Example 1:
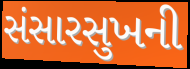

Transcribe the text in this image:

સંસારસુખની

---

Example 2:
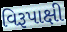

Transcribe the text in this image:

વિરૂપાક્ષી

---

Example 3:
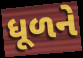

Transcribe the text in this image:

ધૂળને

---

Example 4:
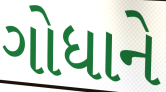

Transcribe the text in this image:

ગોધાને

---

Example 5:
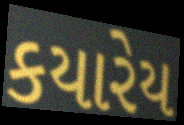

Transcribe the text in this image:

કયારેય